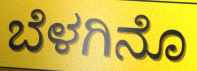
ಬೆಳಗಿನೊ